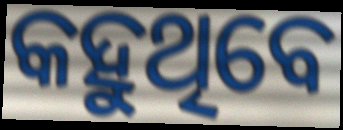
କହୁଥିବେ